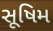
સૂષિમ